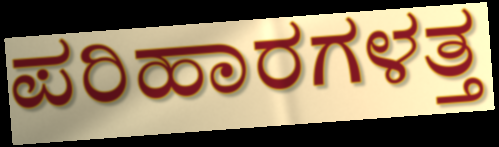
ಪರಿಹಾರಗಳತ್ತ